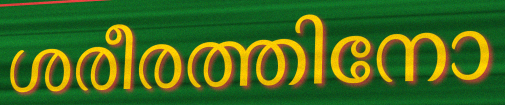
ശരീരത്തിനോ